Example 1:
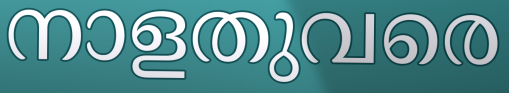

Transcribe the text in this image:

നാളതുവരെ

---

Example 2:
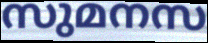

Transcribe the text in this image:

സുമനസ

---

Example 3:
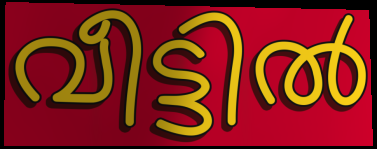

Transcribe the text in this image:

വീട്ടിൽ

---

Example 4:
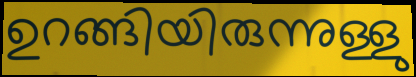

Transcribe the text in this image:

ഉറങ്ങിയിരുന്നുള്ളു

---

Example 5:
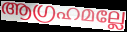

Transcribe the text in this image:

ആഗ്രഹമല്ലേ